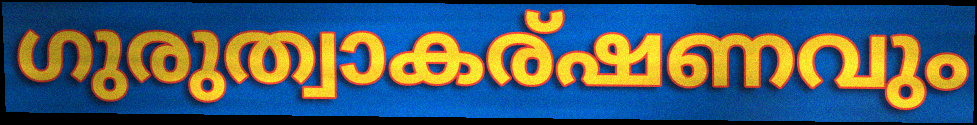
ഗുരുത്വാകര്ഷണവും